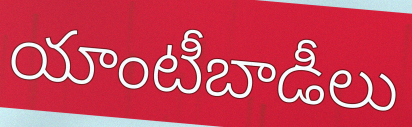
యాంటీబాడీలు